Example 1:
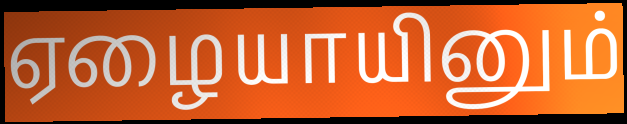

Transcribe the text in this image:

ஏழையாயினும்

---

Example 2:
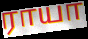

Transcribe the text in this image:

ராயா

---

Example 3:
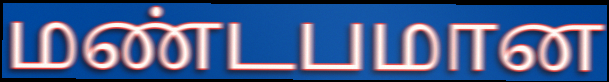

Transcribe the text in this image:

மண்டபமான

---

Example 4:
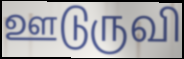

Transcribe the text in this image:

ஊடுருவி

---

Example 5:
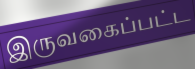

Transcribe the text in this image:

இருவகைப்பட்ட